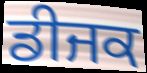
ਡੀਜਕ